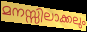
മനസ്സിലാക്കലും